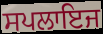
ਸਪਲਾਇਜ